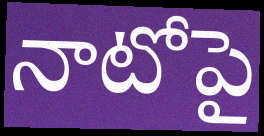
నాటోపై